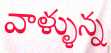
వాళ్ళున్న